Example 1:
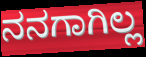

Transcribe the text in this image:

ನನಗಾಗಿಲ್ಲ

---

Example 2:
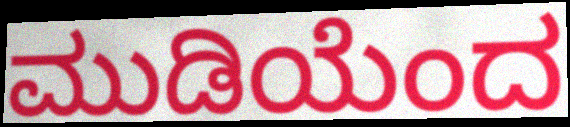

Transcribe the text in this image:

ಮುಡಿಯೆಂದ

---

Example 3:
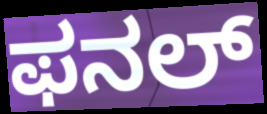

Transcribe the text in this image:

ಫನಲ್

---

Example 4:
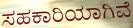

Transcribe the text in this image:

ಸಹಕಾರಿಯಾಗಿವೆ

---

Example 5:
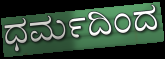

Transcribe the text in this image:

ಧರ್ಮದಿಂದ